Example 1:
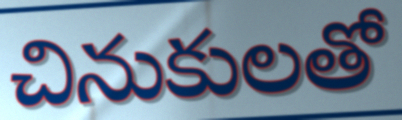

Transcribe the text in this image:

చినుకులతో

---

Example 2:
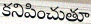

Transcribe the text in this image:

కనిపించుతూ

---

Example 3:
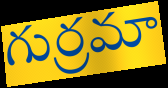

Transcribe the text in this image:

గుర్రమా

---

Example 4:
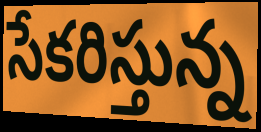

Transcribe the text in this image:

సేకరిస్తున్న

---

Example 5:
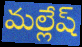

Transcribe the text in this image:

మల్లేష్